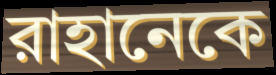
রাহানেকে